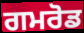
ਗਮਰੋਡ